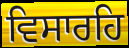
ਵਿਸਾਰਹਿ